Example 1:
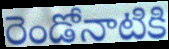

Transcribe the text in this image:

రెండోనాటికి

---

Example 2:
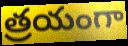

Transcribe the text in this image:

త్రయంగా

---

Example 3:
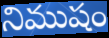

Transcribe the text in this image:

నిముషం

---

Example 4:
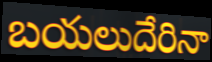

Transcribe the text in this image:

బయలుదేరినా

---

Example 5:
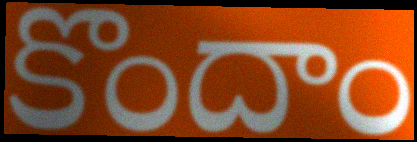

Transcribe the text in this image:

కొందాం